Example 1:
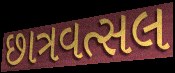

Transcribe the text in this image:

છાત્રવત્સલ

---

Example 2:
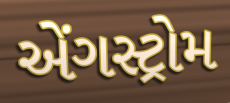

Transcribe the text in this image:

એંગસ્ટ્રોમ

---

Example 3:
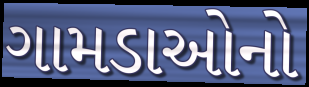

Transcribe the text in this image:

ગામડાઓનો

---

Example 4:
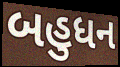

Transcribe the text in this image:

બહુધન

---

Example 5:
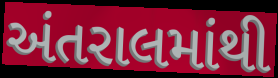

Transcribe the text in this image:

અંતરાલમાંથી